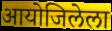
आयोजिलेला